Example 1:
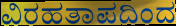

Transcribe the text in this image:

ವಿರಹತಾಪದಿಂದ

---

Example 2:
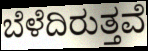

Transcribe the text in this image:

ಬೆಳೆದಿರುತ್ತವೆ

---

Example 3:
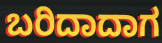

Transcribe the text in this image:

ಬರಿದಾದಾಗ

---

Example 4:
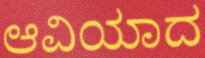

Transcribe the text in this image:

ಆವಿಯಾದ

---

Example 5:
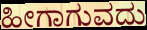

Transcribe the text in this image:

ಹೀಗಾಗುವದು